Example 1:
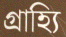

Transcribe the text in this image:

গ্রাহ্যি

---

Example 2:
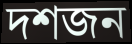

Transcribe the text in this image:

দশজন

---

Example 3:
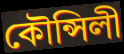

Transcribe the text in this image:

কৌন্সিলী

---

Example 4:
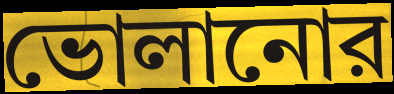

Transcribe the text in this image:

ভোলানোর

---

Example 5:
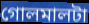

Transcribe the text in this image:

গোলমালটা